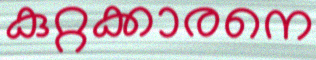
കുറ്റക്കാരനെ